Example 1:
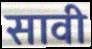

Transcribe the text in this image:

सावी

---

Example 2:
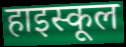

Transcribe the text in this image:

हाइस्कूल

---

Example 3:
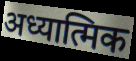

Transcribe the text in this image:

अध्यात्मिक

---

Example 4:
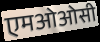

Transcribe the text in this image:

एमओओसी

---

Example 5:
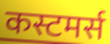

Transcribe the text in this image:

कस्‍टमर्स